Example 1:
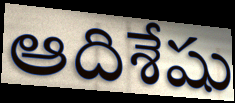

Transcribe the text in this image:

ఆదిశేషు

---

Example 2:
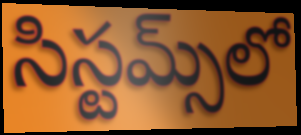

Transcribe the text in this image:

సిస్టమ్స్‌లో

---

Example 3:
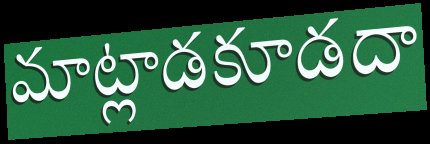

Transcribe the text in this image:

మాట్లాడకూడదా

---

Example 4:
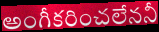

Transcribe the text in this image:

అంగీకరించలేననీ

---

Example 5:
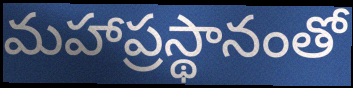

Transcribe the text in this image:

మహాప్రస్థానంతో